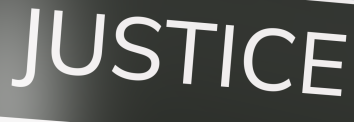
JUSTICE